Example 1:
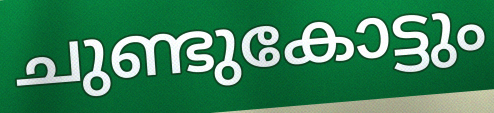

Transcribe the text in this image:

ചുണ്ടുകോട്ടും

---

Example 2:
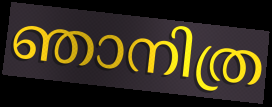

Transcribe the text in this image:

ഞാനിത്ര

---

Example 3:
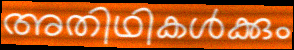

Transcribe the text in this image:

അതിഥികൾക്കും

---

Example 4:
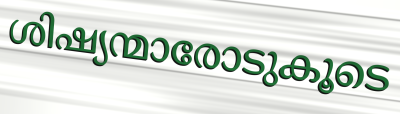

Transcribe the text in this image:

ശിഷ്യന്മാരോടുകൂടെ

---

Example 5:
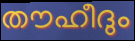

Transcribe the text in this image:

തൗഹീദും